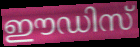
ഈഡിസ്